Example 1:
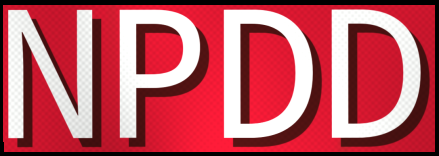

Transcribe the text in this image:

NPDD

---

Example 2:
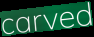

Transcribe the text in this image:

carved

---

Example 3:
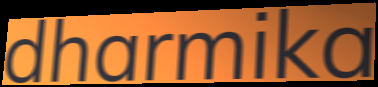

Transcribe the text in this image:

dharmika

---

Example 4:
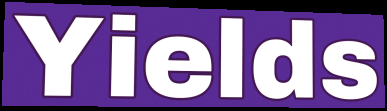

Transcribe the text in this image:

Yields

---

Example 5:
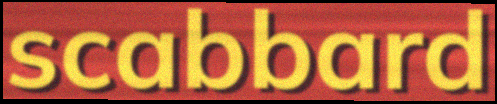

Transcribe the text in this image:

scabbard